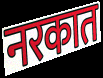
नरकात